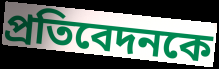
প্রতিবেদনকে